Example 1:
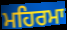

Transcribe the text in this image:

ਮਹਿਰਮਾ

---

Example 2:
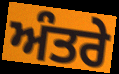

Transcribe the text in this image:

ਅੰਤਰੇ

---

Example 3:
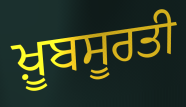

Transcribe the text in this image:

ਖ਼ੂਬਸੂਰਤੀ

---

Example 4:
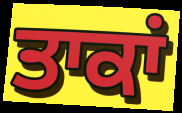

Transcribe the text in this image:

ਤਾਕਾਂ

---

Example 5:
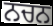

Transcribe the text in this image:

ਨਚਨ